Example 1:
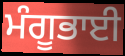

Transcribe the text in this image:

ਮੰਗੂਭਾਈ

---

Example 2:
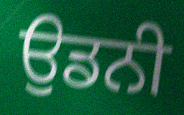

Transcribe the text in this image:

ਉਡਨੀ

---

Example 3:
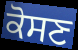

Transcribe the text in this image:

ਕੋਸਣ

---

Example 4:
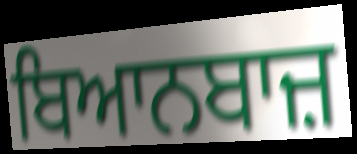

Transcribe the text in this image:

ਬਿਆਨਬਾਜ਼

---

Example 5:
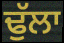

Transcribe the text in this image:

ਢੁੱਲਾ